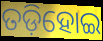
ତଡ଼ିହୋଇ